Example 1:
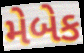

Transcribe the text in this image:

મેબેક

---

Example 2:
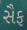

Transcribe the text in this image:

સૈફ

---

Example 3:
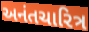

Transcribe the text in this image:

અનંતચારિત્ર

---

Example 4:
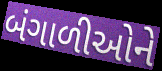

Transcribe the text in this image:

બંગાળીઓને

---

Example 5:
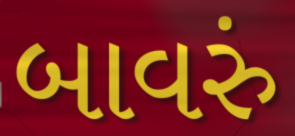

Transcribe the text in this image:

બાવરું